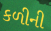
કળીની